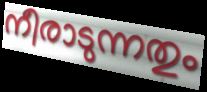
നീരാടുന്നതും